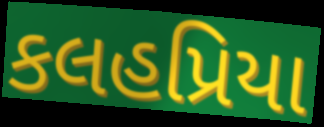
કલહપ્રિયા